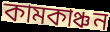
কামকাঞ্চন